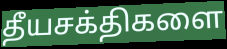
தீயசக்திகளை